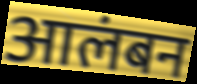
आलंबन